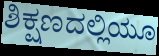
ಶಿಕ್ಷಣದಲ್ಲಿಯೂ